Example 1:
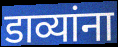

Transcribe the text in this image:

डाव्यांना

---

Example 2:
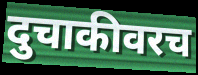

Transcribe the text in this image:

दुचाकीवरच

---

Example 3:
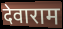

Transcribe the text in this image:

देवाराम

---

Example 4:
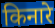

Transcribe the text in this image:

किनारे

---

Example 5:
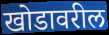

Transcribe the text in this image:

खोडावरील